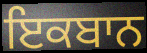
ਇਕਬਾਨ